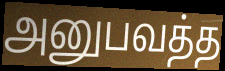
அனுபவத்த